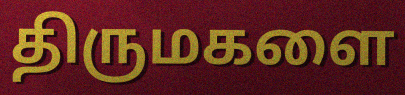
திருமகளை